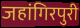
जहांगिरपुरी